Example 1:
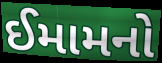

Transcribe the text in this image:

ઈમામનો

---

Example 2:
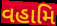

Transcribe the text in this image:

વહામિ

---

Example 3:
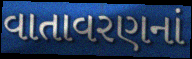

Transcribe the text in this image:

વાતાવરણનાં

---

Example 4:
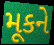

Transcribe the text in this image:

મૂકને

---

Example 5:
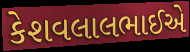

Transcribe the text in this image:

કેશવલાલભાઈએ